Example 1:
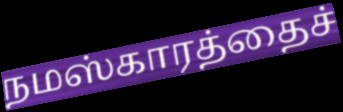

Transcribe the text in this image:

நமஸ்காரத்தைச்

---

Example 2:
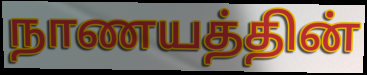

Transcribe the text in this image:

நாணயத்தின்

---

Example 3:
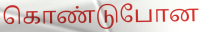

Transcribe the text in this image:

கொண்டுபோன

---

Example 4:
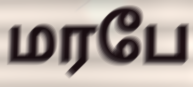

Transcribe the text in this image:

மரபே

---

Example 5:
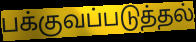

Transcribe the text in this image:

பக்குவப்படுத்தல்